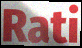
Rati